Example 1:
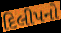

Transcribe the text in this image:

દિલીપનો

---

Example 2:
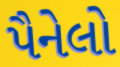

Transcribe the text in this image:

પૈનેલો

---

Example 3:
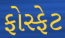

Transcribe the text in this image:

ફોસ્ફેટ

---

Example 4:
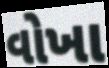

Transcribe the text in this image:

વોખા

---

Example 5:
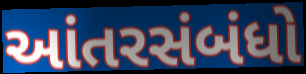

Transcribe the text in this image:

આંતરસંબંધો